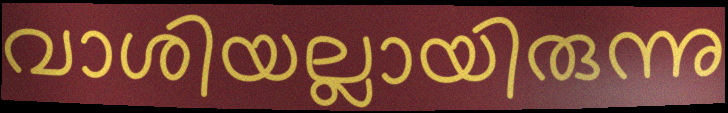
വാശിയല്ലായിരുന്നു